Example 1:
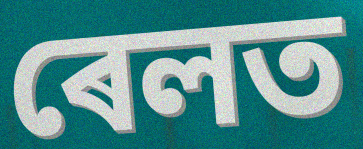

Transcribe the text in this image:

ৰেলত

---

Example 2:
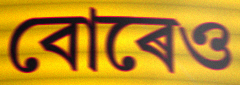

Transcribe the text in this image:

বোৰেও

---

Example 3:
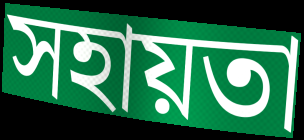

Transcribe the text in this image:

সহায়তা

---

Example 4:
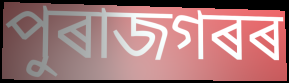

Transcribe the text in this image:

পুৰাজগৰৰ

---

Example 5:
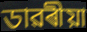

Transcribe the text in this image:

ডাৱৰীয়া